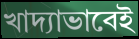
খাদ্যাভাবেই